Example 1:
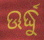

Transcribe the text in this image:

ଊର୍ଦ୍ଧୁ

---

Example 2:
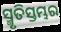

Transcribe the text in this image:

ସ୍ମୃତିସ୍ତମ୍ଭର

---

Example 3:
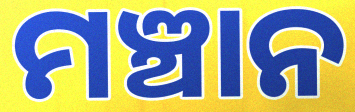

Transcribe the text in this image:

ମଞ୍ଚାନ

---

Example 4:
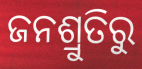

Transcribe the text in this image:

ଜନଶ୍ରୁତିରୁ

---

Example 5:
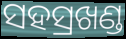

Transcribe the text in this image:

ସହସ୍ରଖଣ୍ଡ